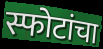
स्फोटांचा